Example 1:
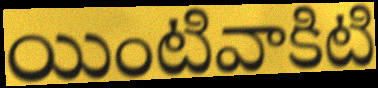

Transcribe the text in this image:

యింటివాకిటి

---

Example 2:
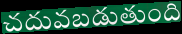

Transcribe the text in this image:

చదువబడుతుంది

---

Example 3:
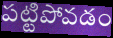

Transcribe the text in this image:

పట్టిపోవడం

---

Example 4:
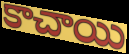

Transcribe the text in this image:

కాచాయి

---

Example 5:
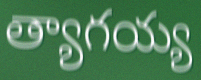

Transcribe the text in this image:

త్యాగయ్య